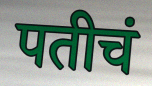
पतीचं